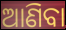
ଆଣିବା